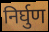
निर्घुण